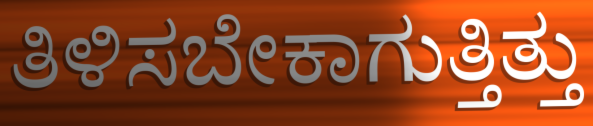
ತಿಳಿಸಬೇಕಾಗುತ್ತಿತ್ತು